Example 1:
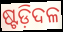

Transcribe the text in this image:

ଷ୍ଟଡ଼ିଦଳ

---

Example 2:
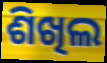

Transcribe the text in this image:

ଶିଖିଲ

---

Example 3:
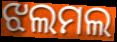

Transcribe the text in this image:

ଝଲମଲ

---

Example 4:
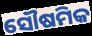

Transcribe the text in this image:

ସୌଷମିକ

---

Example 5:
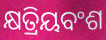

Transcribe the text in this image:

କ୍ଷତ୍ରିୟବଂଶ